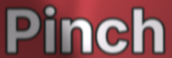
Pinch